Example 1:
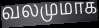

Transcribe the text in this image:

வலமுமாக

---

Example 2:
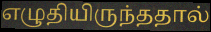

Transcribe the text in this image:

எழுதியிருந்ததால்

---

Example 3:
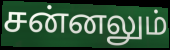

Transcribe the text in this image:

சன்னலும்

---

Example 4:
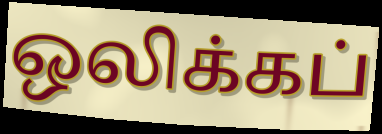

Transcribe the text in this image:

ஒலிக்கப்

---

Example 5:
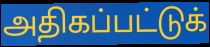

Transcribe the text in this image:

அதிகப்பட்டுக்